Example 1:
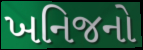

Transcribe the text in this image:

ખનિજનો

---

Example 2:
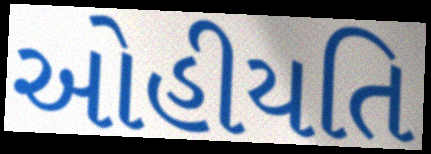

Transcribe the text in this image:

ઓહીયતિ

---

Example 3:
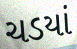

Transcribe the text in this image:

ચડયાં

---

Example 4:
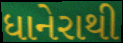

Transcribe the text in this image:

ધાનેરાથી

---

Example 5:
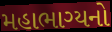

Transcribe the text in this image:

મહાભાગ્યનો